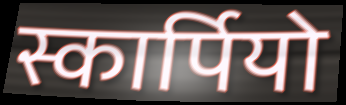
स्कार्पियो